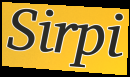
Sirpi